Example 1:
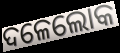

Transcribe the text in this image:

ଦଳେଲୋକ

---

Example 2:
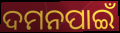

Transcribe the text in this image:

ଦମନପାଇଁ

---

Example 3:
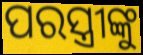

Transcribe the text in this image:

ପରସ୍ତ୍ରୀଙ୍କୁ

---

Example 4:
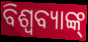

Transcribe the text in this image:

ବିଶ୍ଵବ୍ୟାଙ୍କ୍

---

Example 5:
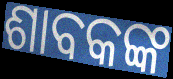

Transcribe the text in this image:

ଶାବକଙ୍କ